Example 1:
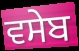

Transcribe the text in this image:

ਵਸੇਬ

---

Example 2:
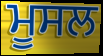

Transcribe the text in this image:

ਮੂਸਲ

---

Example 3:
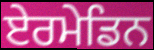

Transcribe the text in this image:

ਏਰਮੇਡਿਨ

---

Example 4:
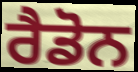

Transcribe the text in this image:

ਰੈਡੋਨ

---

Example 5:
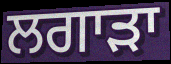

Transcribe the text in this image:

ਲਗਾੜਾ